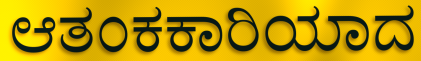
ಆತಂಕಕಾರಿಯಾದ